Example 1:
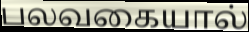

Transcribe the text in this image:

பலவகையால்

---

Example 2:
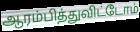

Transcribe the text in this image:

ஆரம்பித்துவிட்டோம்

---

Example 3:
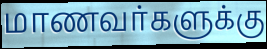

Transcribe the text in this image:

மாணவர்களுக்கு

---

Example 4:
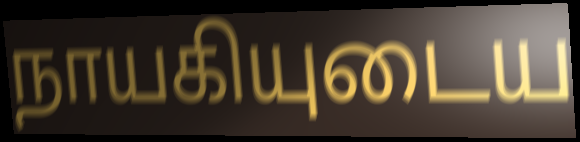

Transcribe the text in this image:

நாயகியுடைய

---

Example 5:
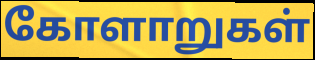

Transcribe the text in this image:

கோளாறுகள்